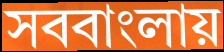
সববাংলায়